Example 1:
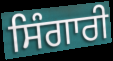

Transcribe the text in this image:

ਸਿੰਗਾਰੀ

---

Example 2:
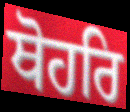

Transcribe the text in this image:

ਥੋਹਰਿ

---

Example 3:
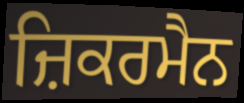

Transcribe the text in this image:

ਜ਼ਿਕਰਮੈਨ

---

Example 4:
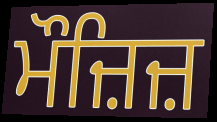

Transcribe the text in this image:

ਮੌਜ਼ਿਜ਼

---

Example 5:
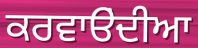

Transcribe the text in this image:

ਕਰਵਾੳਂਦੀਆ